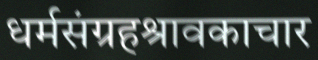
धर्मसंग्रहश्रावकाचार